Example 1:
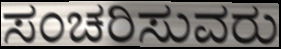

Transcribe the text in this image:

ಸಂಚರಿಸುವರು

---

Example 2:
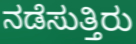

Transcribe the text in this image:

ನಡೆಸುತ್ತಿರು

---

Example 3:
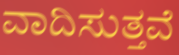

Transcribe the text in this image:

ವಾದಿಸುತ್ತವೆ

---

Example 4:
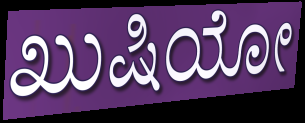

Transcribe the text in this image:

ಖುಷಿಯೋ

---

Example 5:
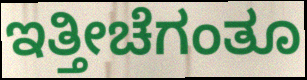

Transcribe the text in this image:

ಇತ್ತೀಚೆಗಂತೂ